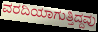
ವರದಿಯಾಗುತ್ತಿದ್ದವು